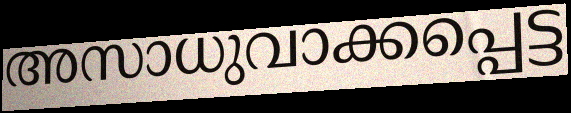
അസാധുവാക്കപ്പെട്ട